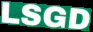
LSGD